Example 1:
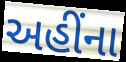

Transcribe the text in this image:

અહીંના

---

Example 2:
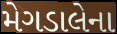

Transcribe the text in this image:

મેગડાલેના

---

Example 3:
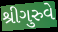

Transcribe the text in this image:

શ્રીગુરુવે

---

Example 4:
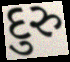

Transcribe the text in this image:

દુરુ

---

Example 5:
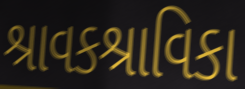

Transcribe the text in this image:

શ્રાવકશ્રાવિકા